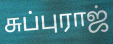
சுப்புராஜ்